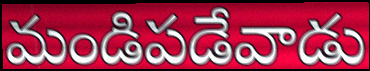
మండిపడేవాడు